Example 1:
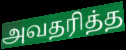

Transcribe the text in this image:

அவதரித்த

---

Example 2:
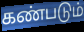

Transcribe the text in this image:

கண்படும்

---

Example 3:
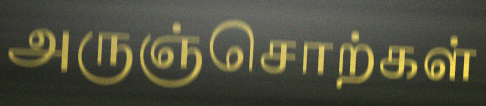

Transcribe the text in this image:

அருஞ்சொற்கள்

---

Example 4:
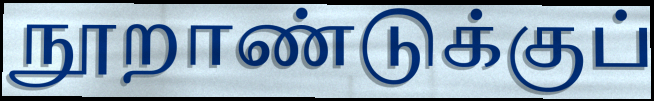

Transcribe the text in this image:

நூறாண்டுக்குப்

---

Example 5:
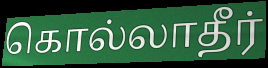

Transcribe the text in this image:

கொல்லாதீர்